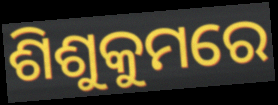
ଶିଶୁକୁମରେ